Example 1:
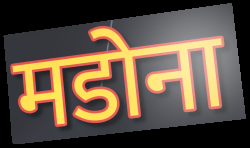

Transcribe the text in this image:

मडोना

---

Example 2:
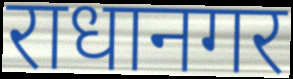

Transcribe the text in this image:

राधानगर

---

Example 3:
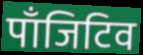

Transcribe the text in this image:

पाँजिटिव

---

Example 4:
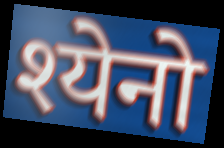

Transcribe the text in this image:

श्येनो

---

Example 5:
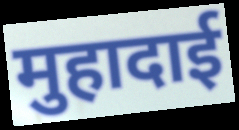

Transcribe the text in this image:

मुहादाई